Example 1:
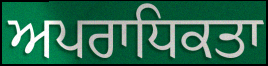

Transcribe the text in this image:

ਅਪਰਾਧਿਕਤਾ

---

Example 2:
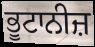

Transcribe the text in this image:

ਭੂਟਾਨੀਜ਼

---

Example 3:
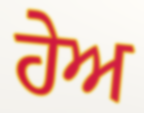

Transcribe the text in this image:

ਹੇਅ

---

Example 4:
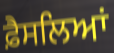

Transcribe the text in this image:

ਫ਼ੈਸਲਿਆਂ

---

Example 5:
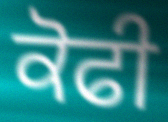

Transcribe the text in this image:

ਕੋਫੀ